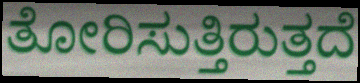
ತೋರಿಸುತ್ತಿರುತ್ತದೆ